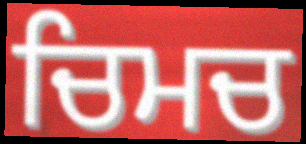
ਚਿਮਚ